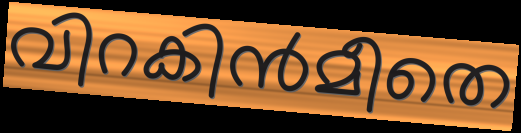
വിറകിൻമീതെ